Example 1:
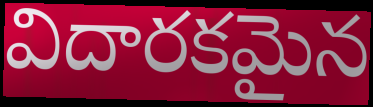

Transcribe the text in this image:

విదారకమైన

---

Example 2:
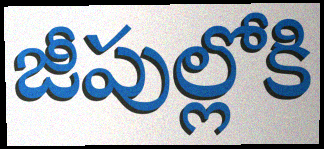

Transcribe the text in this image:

జీపుల్లోకి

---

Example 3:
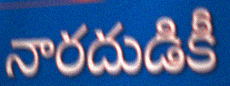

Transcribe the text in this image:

నారదుడికీ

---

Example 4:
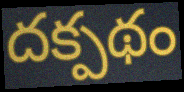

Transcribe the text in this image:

దక్పథం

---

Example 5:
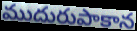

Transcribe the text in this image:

ముదురుపాకాన